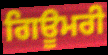
ਗਿਊਮਰੀ